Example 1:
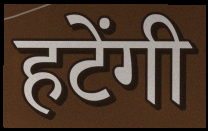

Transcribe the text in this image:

हटेंगी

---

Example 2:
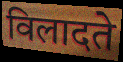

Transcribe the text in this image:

विलादते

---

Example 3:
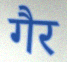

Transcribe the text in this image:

गैर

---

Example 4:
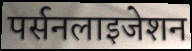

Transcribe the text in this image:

पर्सनलाइजेशन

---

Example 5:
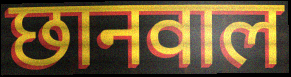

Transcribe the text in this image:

छानवाल